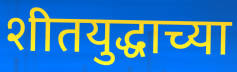
शीतयुद्धाच्या